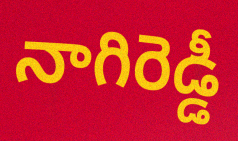
నాగిరెడ్డీ